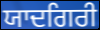
ਯਾਦਗਿਰੀ